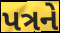
પત્રને